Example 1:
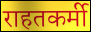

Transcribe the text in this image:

राहतकर्मी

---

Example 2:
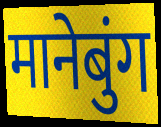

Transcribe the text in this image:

मानेबुंग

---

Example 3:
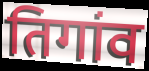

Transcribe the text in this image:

तिगांव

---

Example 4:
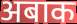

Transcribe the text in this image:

अबाक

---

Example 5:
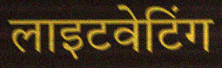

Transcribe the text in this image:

लाइटवेटिंग